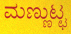
ಮಣ್ಣುಟ್ಟ